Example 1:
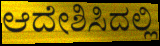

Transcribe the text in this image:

ಆದೇಶಿಸಿದಲ್ಲಿ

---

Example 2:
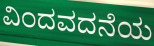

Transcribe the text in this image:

ವಿಂದವದನೆಯ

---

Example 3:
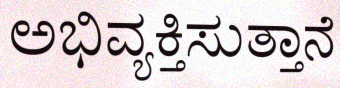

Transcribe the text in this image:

ಅಭಿವ್ಯಕ್ತಿಸುತ್ತಾನೆ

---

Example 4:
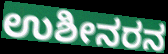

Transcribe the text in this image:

ಉಶೀನರನ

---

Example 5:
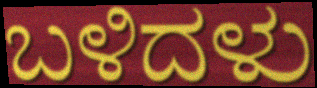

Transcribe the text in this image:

ಬಳಿದಳು